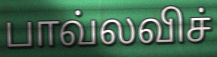
பாவ்லவிச்